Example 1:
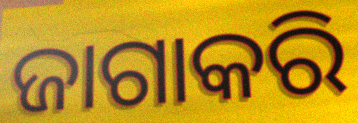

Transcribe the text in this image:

ଜାଗାକରି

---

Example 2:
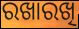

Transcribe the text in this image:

ରଖାରଖି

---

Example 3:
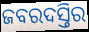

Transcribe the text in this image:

ଜବରଦସ୍ତିର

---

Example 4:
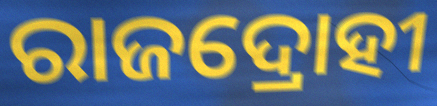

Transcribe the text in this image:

ରାଜଦ୍ରୋହୀ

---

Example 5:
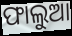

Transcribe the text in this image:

ଫାଲୁଆ